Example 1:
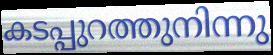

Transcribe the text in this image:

കടപ്പുറത്തുനിന്നു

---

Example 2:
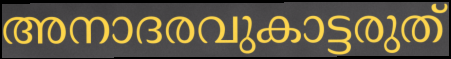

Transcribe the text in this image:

അനാദരവുകാട്ടരുത്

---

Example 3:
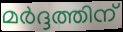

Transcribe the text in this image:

മർദ്ദത്തിന്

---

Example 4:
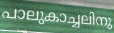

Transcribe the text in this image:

പാലുകാച്ചലിനു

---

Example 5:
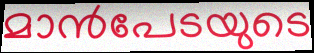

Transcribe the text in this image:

മാൻപേടയുടെ